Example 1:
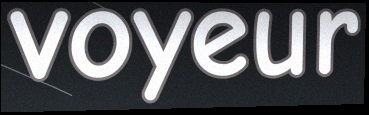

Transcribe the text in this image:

voyeur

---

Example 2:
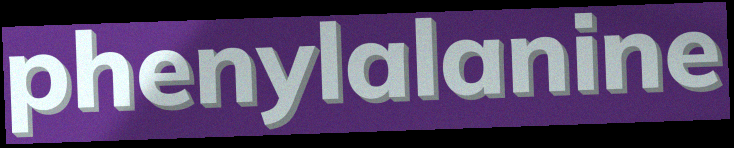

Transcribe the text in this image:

phenylalanine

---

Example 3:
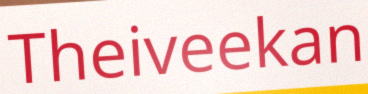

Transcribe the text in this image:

Theiveekan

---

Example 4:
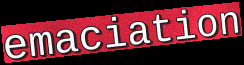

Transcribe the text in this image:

emaciation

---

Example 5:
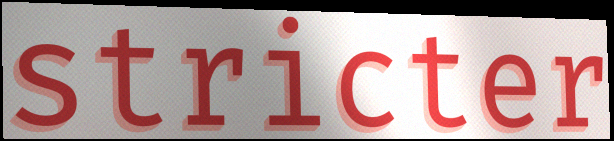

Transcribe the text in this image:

stricter